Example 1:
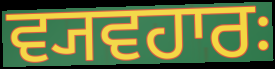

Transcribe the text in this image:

ਵ੍ਯਵਹਾਰਃ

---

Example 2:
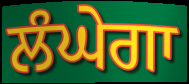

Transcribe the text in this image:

ਲੰਘੇਗਾ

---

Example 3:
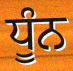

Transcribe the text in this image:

ਧੂੰਨ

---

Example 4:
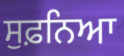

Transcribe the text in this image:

ਸੁਫ਼ਨਿਆ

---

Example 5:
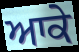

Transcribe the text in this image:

ਆਕੇ